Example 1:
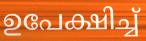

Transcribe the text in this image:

ഉപേക്ഷിച്ച്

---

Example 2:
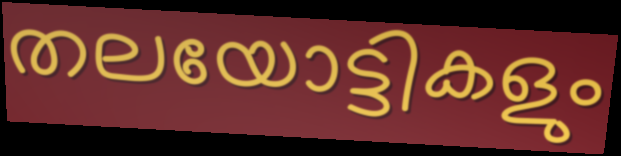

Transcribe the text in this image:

തലയോട്ടികളും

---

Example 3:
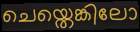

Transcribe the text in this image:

ചെയ്തെങ്കിലോ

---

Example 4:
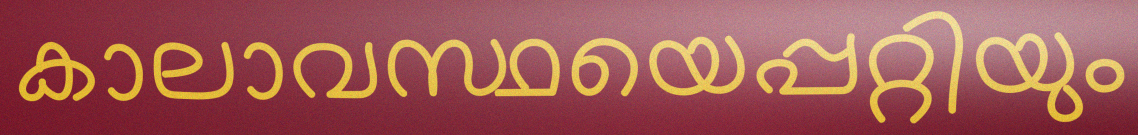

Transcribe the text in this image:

കാലാവസ്ഥയെപ്പറ്റിയും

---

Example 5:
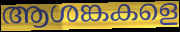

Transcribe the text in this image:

ആശങ്കകളെ